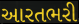
આરતભરી